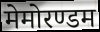
मेमोरण्डम